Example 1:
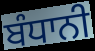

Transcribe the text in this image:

ਬੰਧਾਨੀ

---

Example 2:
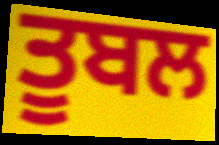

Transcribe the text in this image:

ਤੂਬਲ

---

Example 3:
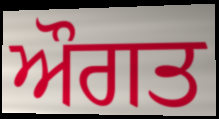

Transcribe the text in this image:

ਔਗਤ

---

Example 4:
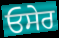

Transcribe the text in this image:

ਓਸੇਰ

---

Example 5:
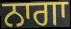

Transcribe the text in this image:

ਨਾਗਾ